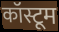
कॉस्टूम